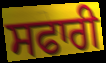
ਸਫਾਰੀ